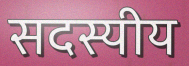
सदस्‍यीय